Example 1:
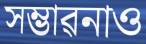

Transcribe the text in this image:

সম্ভাৱনাও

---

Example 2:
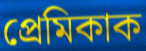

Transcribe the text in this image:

প্ৰেমিকাক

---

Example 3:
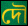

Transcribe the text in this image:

দৌ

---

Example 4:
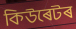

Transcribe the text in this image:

কিউৰেটৰ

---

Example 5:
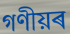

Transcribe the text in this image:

গণীয়ৰ